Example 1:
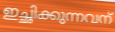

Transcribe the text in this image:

ഇച്ഛിക്കുന്നവന്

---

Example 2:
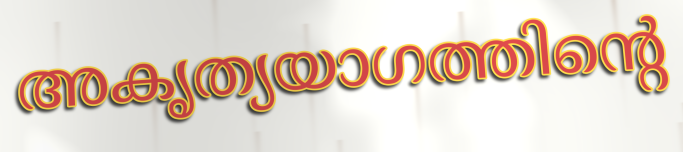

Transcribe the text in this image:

അകൃത്യയാഗത്തിന്റെ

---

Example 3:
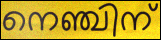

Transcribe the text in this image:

നെഞ്ചിന്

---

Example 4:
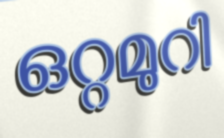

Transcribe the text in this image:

ഒറ്റമുറി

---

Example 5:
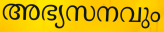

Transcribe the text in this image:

അഭ്യസനവും